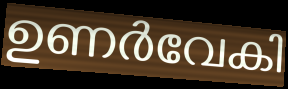
ഉണർവേകി